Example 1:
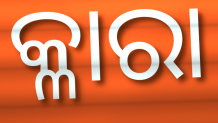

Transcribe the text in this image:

କ୍ଳାରା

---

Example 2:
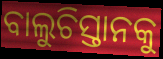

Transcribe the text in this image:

ବାଲୁଚିସ୍ତାନକୁ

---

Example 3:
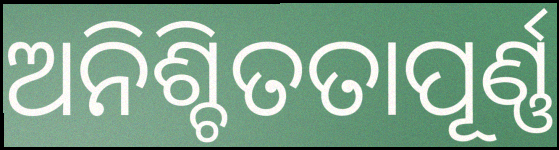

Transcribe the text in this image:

ଅନିଶ୍ଚିତତାପୂର୍ଣ୍ଣ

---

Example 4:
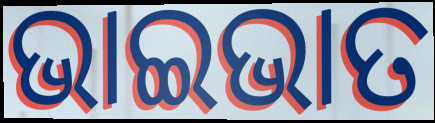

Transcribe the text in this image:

ଭାଇଭାତ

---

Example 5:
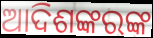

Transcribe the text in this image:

ଆଦିଶଙ୍କରଙ୍କ